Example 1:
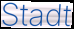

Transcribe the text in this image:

Stadt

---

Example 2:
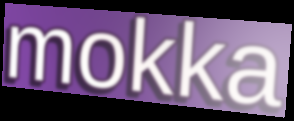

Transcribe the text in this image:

mokka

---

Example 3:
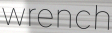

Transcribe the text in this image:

wrench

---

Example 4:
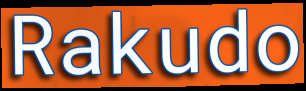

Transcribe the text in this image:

Rakudo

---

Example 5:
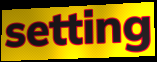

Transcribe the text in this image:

setting